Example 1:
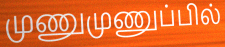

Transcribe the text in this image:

முணுமுணுப்பில்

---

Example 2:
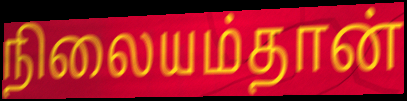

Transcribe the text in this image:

நிலையம்தான்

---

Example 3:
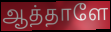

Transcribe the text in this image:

ஆத்தாளே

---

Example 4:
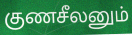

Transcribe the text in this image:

குணசீலனும்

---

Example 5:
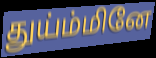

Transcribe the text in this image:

துய்ம்மினே